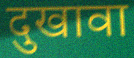
दुखावा